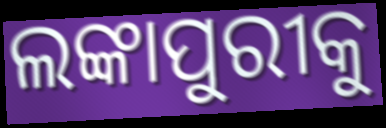
ଲଙ୍କାପୁରୀକୁ